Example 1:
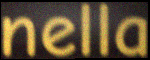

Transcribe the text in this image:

nella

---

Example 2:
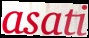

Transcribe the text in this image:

asati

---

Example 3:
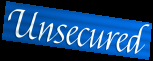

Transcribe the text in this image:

Unsecured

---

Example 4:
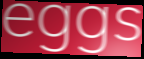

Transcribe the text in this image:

eggs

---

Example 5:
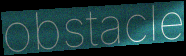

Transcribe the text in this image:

obstacle